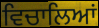
ਵਿਚਾਲਿਆਂ